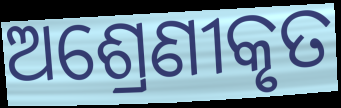
ଅଶ୍ରେଣୀକୃତ